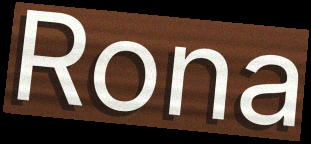
Rona